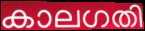
കാലഗതി